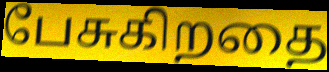
பேசுகிறதை